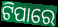
ଟିପାରେ